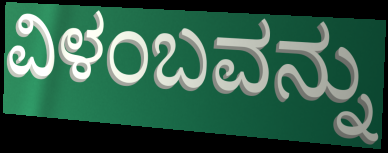
ವಿಳಂಬವನ್ನು